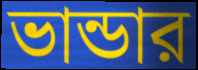
ভান্ডার